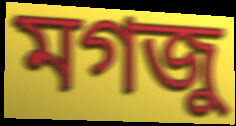
মগজু